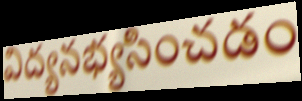
విద్యనభ్యసించడం